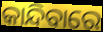
କାନ୍ଦିବାରେ